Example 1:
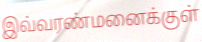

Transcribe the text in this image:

இவ்வரண்மனைக்குள்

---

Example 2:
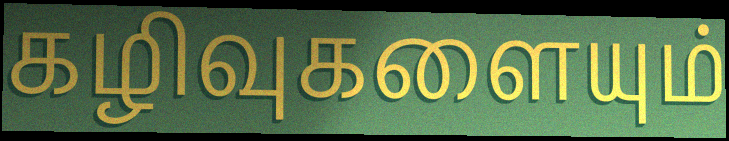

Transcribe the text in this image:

கழிவுகளையும்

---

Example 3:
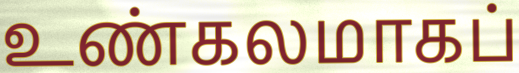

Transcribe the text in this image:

உண்கலமாகப்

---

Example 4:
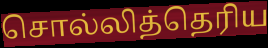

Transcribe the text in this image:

சொல்லித்தெரிய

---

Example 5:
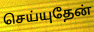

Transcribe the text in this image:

செய்யுதேன்